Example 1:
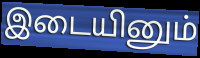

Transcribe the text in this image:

இடையினும்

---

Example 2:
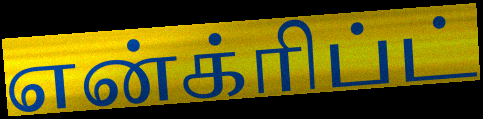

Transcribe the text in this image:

என்க்ரிப்ட்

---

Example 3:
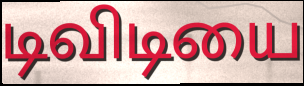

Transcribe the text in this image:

டிவிடியை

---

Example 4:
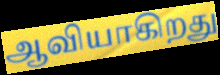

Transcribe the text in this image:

ஆவியாகிறது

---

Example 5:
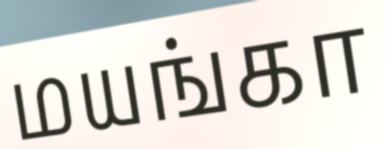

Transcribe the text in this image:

மயங்கா